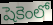
షెకెంలో